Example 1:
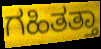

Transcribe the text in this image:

ಗಹಿತತ್ತಾ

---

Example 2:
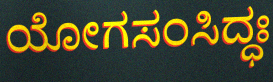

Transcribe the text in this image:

ಯೋಗಸಂಸಿದ್ಧಃ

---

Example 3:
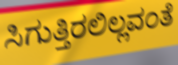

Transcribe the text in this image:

ಸಿಗುತ್ತಿರಲಿಲ್ಲವಂತೆ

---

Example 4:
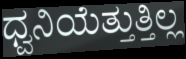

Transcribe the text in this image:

ಧ್ವನಿಯೆತ್ತುತ್ತಿಲ್ಲ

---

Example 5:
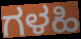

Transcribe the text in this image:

ಗಳಹಿ